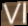
VI